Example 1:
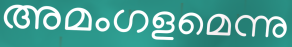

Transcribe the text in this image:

അമംഗളമെന്നു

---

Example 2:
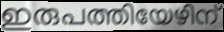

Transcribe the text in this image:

ഇരുപത്തിയേഴിന്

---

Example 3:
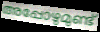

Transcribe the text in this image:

അപ്പോഴുമുണ്ട്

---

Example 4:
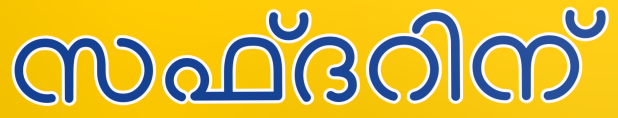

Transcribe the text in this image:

സഫ്ദറിന്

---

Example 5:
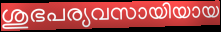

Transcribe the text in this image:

ശുഭപര്യവസായിയായ